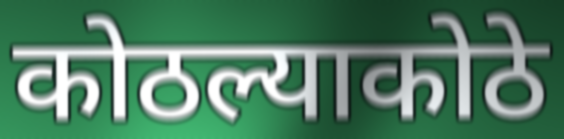
कोठल्याकोठे